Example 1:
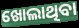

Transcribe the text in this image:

ଖୋଲାଥିବା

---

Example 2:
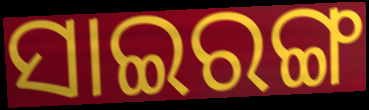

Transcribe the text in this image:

ସାଇରଙ୍ଗ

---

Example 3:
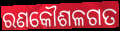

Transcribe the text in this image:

ରଣକୌଶଳଗତ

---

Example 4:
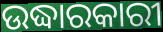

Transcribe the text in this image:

ଉଦ୍ଧାରକାରୀ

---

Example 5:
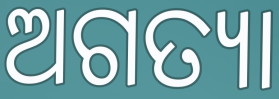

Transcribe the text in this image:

ଅଗତ୍ୟା